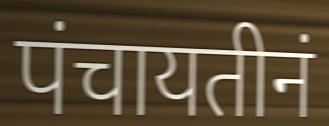
पंचायतीनं